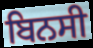
ਬਿਨਸੀ